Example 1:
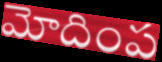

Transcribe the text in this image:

మోదింప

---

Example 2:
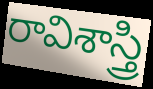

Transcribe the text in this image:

రావిశాస్త్రి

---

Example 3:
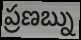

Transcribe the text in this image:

ప్రణబ్ను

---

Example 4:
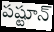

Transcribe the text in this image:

పష్టూన్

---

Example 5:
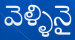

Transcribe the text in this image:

వెళ్ళినై